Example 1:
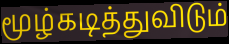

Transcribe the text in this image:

மூழ்கடித்துவிடும்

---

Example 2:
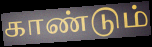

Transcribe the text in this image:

காண்டும்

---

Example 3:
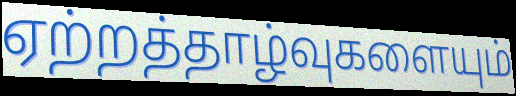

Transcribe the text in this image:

ஏற்றத்தாழ்வுகளையும்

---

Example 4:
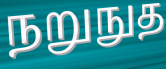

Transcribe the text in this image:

நறுநுத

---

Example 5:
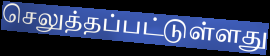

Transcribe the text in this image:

செலுத்தப்பட்டுள்ளது